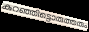
കുറഞ്ഞിട്ടൊരുത്തരും